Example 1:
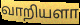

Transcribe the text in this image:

வாறியளா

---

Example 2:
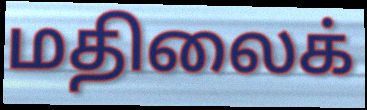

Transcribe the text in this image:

மதிலைக்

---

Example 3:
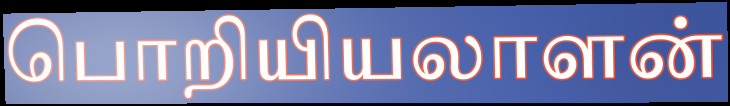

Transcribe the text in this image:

பொறியியலாளன்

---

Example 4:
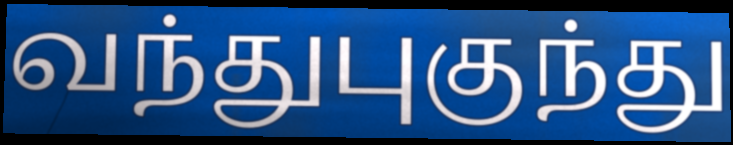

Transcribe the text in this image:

வந்துபுகுந்து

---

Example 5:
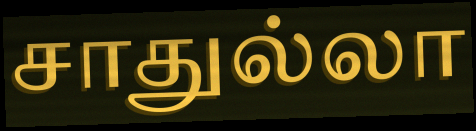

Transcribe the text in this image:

சாதுல்லா